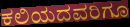
ಕಲಿಯದವರಿಗೂ